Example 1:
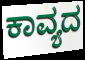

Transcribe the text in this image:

ಕಾವ್ಯದ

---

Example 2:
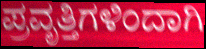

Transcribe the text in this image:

ಪ್ರವೃತ್ತಿಗಳಿಂದಾಗಿ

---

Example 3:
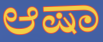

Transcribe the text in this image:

ಆಷಾ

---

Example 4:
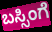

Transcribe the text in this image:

ಬಸ್ಸಿಂಗೆ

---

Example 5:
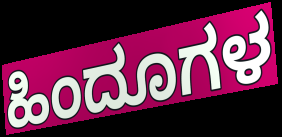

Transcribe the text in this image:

ಹಿಂದೂಗಳ